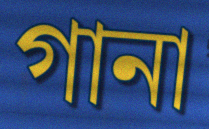
গানা